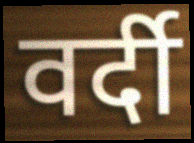
वर्दी